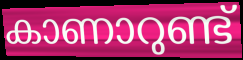
കാണാറുണ്ട്